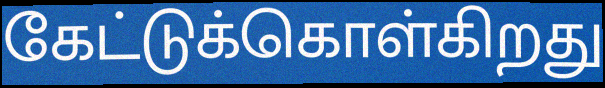
கேட்டுக்கொள்கிறது